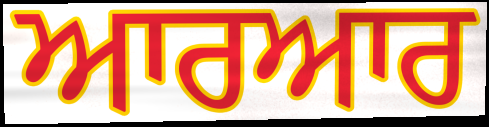
ਆਰਆਰ